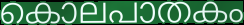
കൊലപാതകം